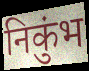
निकुंभ